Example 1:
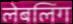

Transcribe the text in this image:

लेबलिंग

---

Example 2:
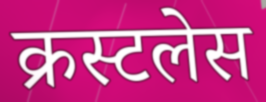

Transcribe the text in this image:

क्रस्टलेस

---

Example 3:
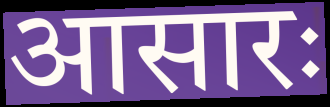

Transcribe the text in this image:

आसारः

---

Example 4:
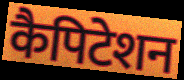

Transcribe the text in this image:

कैपिटेशन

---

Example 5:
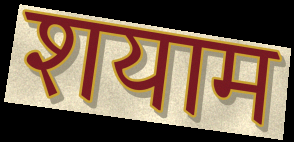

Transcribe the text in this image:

शयाम